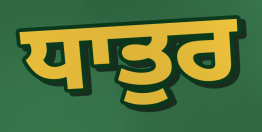
ਧਾਤੁਰ